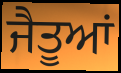
ਜੈਤੂਆਂ